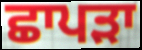
ਛਾਪੜਾ